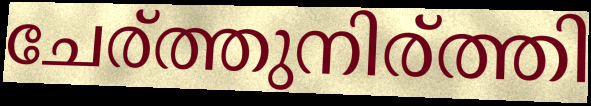
ചേര്ത്തുനിര്ത്തി